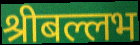
श्रीबल्लभ